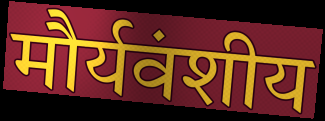
मौर्यवंशीय